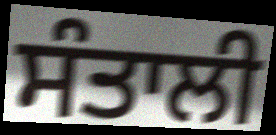
ਸੰਤਾਲੀ